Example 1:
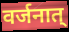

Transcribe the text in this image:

वर्जनात्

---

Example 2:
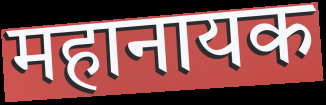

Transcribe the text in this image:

महानायक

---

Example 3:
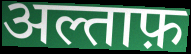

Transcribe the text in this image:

अल्ताफ़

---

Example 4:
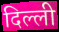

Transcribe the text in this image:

दिल्‍ली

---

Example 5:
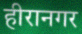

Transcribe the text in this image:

हीरानगर